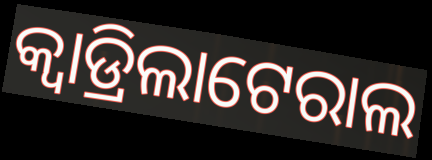
କ୍ୱାଡ୍ରିଲାଟେରାଲ